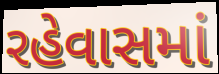
રહેવાસમાં